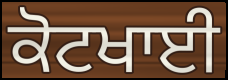
ਕੋਟਖਾਈ